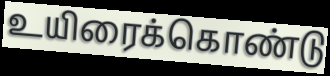
உயிரைக்கொண்டு